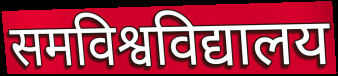
समविश्वविद्यालय